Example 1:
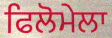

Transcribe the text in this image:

ਫਿਲੋਮੇਲਾ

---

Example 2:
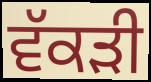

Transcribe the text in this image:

ਵੱਕੜੀ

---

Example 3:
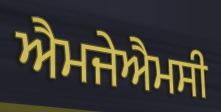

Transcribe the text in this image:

ਐਮਜੇਐਮਸੀ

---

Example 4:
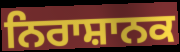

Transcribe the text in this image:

ਨਿਰਾਸ਼ਾਨਕ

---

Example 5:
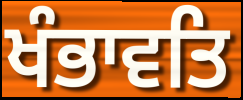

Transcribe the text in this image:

ਖੰਭਾਵਤਿ